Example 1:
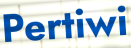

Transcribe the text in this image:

Pertiwi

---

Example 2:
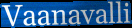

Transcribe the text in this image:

Vaanavalli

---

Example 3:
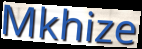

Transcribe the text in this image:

Mkhize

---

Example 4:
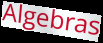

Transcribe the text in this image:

Algebras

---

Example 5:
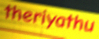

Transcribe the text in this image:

theriyathu